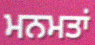
ਮਨਮਤਾਂ